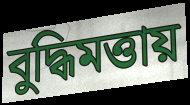
বুদ্ধিমত্তায়